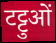
टट्टुओं